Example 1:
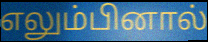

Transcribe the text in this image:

எலும்பினால்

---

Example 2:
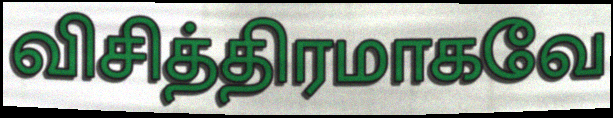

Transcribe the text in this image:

விசித்திரமாகவே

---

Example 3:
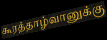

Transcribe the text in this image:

கூரத்தாழ்வானுக்கு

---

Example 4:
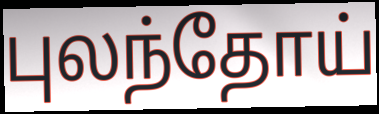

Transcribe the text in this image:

புலந்தோய்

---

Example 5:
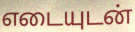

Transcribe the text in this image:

எடையுடன்